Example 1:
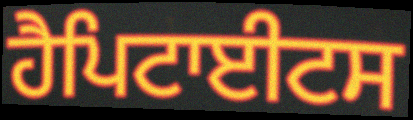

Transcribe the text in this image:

ਹੈਪਿਟਾਈਟਸ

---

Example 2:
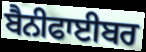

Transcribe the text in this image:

ਬੈਨੀਫਾਈਬਰ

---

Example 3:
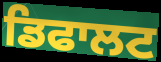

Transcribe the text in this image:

ਡਿਫਾਲਟ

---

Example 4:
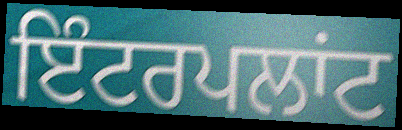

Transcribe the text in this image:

ਇੰਟਰਪਲਾਂਟ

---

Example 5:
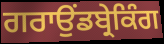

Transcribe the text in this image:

ਗਰਾਉਂਡਬ੍ਰੇਕਿੰਗ